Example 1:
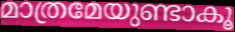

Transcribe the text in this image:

മാത്രമേയുണ്ടാകൂ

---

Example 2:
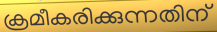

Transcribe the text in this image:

ക്രമീകരിക്കുന്നതിന്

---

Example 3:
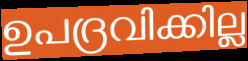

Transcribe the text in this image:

ഉപദ്രവിക്കില്ല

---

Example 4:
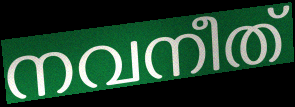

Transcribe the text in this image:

നവനീത്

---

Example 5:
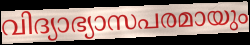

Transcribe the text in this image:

വിദ്യാഭ്യാസപരമായും